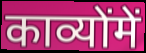
काव्योंमें